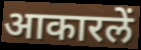
आकारलें